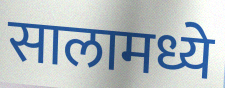
सालामध्ये